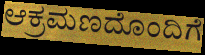
ಆಕ್ರಮಣದೊಂದಿಗೆ